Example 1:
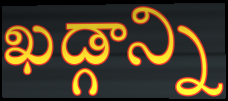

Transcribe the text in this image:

ఖడ్గాన్ని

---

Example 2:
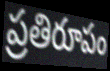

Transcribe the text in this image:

ప్రతిరూపం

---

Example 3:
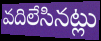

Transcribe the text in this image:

వదిలేసినట్లు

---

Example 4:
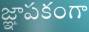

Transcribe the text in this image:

జ్ఞాపకంగా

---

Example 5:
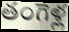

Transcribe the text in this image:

తంగెళ్ల